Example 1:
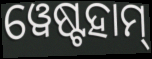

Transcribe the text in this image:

ୱେଷ୍ଟହାମ୍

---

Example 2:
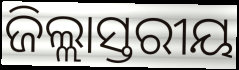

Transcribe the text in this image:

ଜିଲ୍ଲାସ୍ତରୀୟ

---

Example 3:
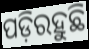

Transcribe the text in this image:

ପଡ଼ିରହୁଛି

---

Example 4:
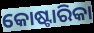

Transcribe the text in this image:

କୋଷ୍ଟାରିକା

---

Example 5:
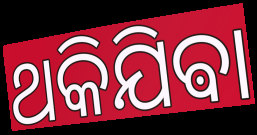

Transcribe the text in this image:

ଥକିଯିଵା